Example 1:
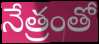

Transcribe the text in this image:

నేత్రంతో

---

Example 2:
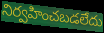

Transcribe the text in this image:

నిర్వహించబడలేదు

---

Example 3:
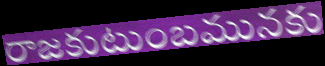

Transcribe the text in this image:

రాజకుటుంబమునకు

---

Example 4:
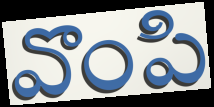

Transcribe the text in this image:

వొంపి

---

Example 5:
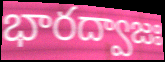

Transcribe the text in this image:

భారద్వాజః